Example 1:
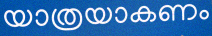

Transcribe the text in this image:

യാത്രയാകണം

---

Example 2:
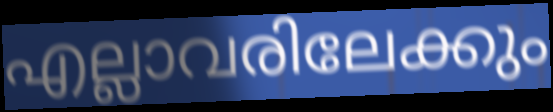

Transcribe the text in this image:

എല്ലാവരിലേക്കും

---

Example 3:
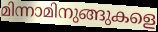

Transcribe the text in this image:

മിന്നാമിനുങ്ങുകളെ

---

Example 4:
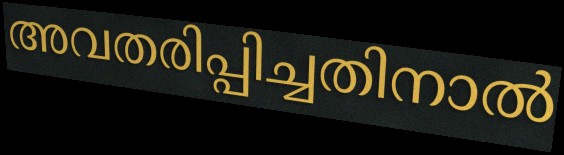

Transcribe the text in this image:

അവതരിപ്പിച്ചതിനാൽ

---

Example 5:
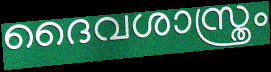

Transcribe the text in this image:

ദൈവശാസ്ത്രം